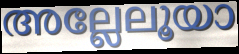
അല്ലേലൂയാ